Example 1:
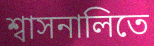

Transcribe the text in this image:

শ্বাসনালিতে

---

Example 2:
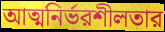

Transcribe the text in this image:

আত্মনির্ভরশীলতার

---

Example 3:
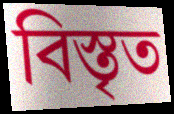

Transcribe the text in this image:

বিস্তৃত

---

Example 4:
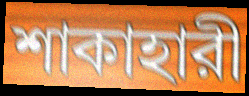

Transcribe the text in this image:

শাকাহারী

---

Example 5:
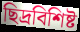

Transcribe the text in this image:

ছিদ্রবিশিষ্ট